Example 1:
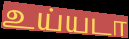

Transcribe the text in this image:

உய்யடா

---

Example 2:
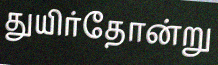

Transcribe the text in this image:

துயிர்தோன்று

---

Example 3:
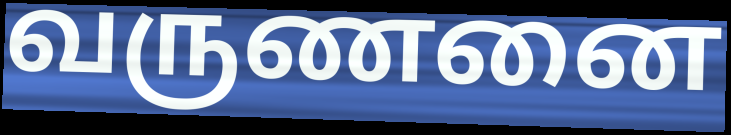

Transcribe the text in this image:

வருணனை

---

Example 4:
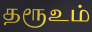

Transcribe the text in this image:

தரூஉம்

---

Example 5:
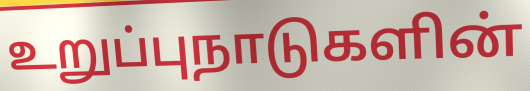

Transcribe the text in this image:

உறுப்புநாடுகளின்